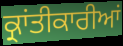
ਕ੍ਰਾਂਤੀਕਾਰੀਆਂ